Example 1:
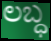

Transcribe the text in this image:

ಲಬ್ಧ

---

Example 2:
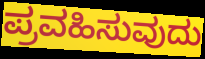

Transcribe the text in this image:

ಪ್ರವಹಿಸುವುದು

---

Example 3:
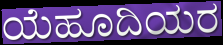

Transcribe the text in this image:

ಯೆಹೂದಿಯರ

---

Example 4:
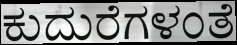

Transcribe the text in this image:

ಕುದುರೆಗಳಂತೆ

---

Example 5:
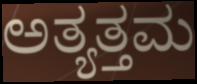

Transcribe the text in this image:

ಅತ್ಯತ್ತಮ